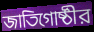
জাতিগোষ্ঠীর